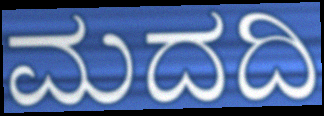
ಮದದಿ